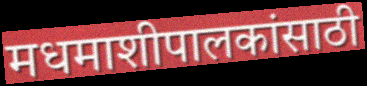
मधमाशीपालकांसाठी